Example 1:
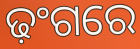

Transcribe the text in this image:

ଢ଼ଂଗରେ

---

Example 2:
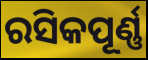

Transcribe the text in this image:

ରସିକପୂର୍ଣ୍ଣ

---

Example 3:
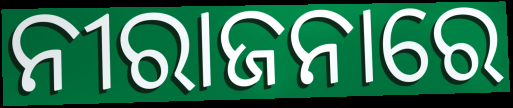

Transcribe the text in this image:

ନୀରାଜନାରେ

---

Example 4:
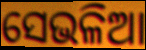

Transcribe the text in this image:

ସେଭଳିଆ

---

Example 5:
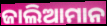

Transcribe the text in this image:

ଜାଲିଆମାନ